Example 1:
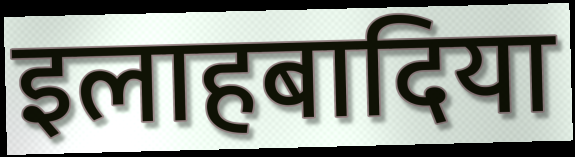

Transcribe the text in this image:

इलाहबादिया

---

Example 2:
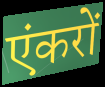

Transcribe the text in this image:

एंकरों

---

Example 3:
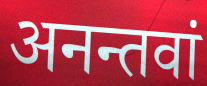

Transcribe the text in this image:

अनन्तवां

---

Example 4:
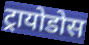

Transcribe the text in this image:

ट्रायोडोस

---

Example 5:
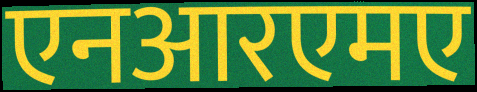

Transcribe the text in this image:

एनआरएमए